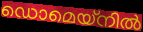
ഡൊമെയ്നിൽ